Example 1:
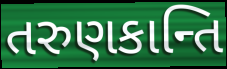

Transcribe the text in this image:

તરુણકાન્તિ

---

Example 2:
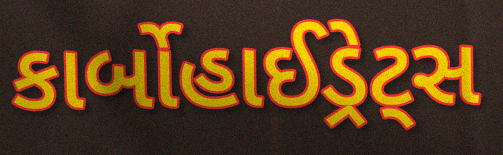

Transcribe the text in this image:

કાર્બોહાઈડ્રેટ્સ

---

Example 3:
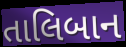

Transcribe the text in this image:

તાલિબાન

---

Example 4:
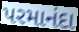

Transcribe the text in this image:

પરમાનંદા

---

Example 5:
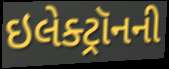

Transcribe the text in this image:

ઇલેક્ટ્રૉનની